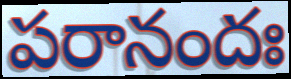
పరానందః